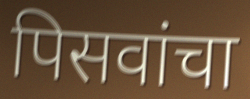
पिसवांचा